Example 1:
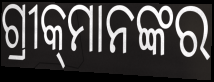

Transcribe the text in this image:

ଗ୍ରୀକ୍‌ମାନଙ୍କର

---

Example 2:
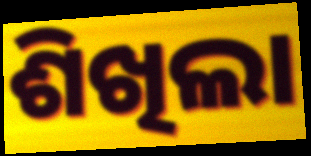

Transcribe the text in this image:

ଶିଖିଲା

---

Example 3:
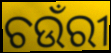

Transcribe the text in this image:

ଚଉଁରୀ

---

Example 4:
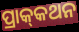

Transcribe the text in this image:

ପ୍ରାକ୍‌କଥନ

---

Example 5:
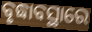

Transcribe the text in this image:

ବୃଦ୍ଧାବସ୍ଥାରେ